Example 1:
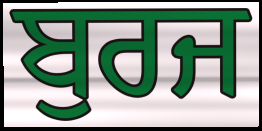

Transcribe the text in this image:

ਬੁਰਜ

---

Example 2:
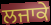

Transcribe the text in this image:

ਲਜਾਕੇ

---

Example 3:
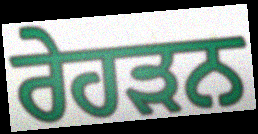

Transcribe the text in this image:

ਰੇਹੜਨ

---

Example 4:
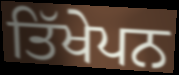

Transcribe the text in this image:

ਤਿੱਖੇਪਨ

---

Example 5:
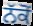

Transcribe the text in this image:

ਨੱਕੋਂ